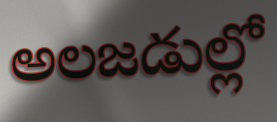
అలజడుల్లో